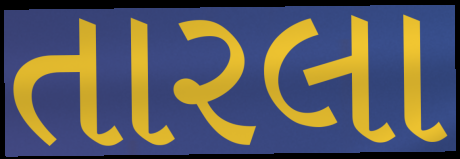
તારલા